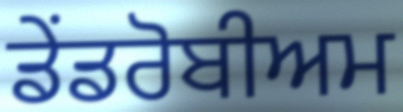
ਡੇਂਡਰੋਬੀਅਮ